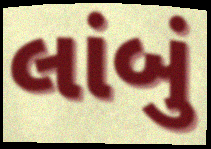
લાંબું